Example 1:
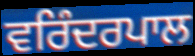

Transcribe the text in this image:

ਵਰਿੰਦਰਪਾਲ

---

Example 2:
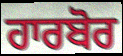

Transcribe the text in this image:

ਹਾਰਬੋਰ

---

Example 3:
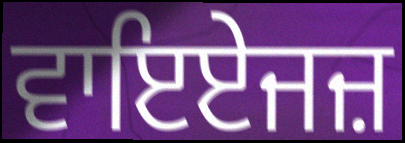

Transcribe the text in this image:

ਵਾਇਏਜਜ਼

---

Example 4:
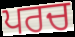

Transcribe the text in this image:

ਪਰਚ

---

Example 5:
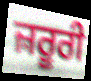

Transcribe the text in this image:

ਜ਼ਰੂਰੀ